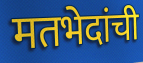
मतभेदांची